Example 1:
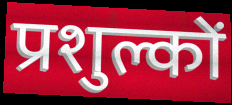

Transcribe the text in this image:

प्रशुल्कों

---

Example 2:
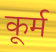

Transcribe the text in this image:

कूर्म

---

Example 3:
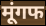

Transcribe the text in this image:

मूंगफ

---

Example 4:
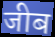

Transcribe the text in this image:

जीब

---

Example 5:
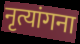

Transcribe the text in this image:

नृत्यांगना